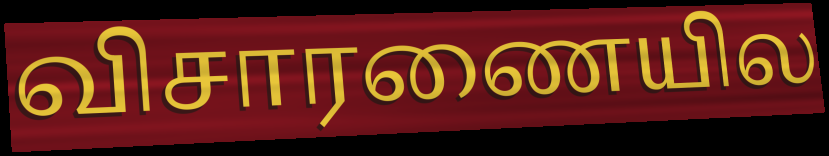
விசாரணையில